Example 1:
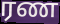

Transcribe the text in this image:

ரண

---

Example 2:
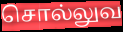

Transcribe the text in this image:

சொல்லுவ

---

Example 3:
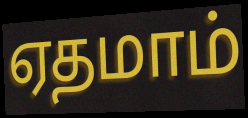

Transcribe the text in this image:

ஏதமாம்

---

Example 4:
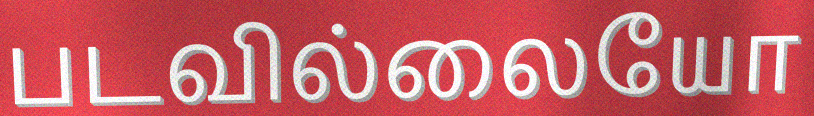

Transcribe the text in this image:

படவில்லையோ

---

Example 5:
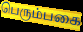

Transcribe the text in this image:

பெரும்பகை